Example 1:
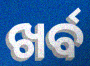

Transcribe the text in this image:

ଖର୍ବ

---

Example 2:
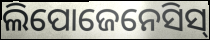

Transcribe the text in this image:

ଲିପୋଜେନେସିସ୍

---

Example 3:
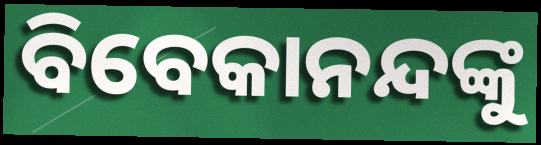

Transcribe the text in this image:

ବିବେକାନନ୍ଦଙ୍କୁ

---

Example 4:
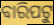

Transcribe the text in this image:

ବାରିପଟୁ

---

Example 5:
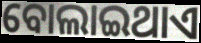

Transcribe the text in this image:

ବୋଲାଇଥାଏ